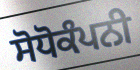
ਸੋਧੋਕੰਪਨੀ